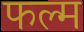
फल्म